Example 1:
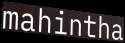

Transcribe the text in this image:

mahintha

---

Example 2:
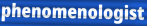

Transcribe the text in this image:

phenomenologist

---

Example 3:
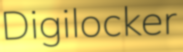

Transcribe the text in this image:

Digilocker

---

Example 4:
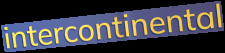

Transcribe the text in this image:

intercontinental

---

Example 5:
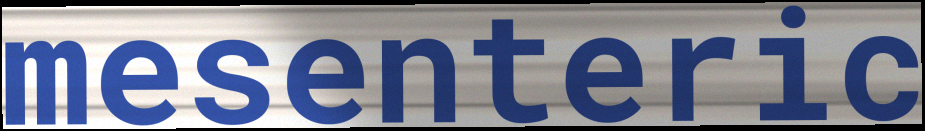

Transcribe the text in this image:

mesenteric